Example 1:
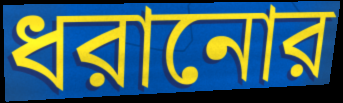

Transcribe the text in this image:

ধরানোর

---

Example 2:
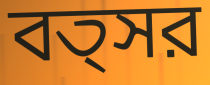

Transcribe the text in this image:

বত্সর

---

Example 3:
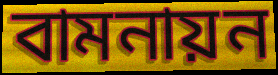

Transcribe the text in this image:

বামনায়ন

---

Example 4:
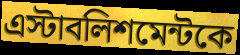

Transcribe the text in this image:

এস্টাবলিশমেন্টকে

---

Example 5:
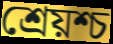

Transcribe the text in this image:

শ্রেয়শ্চ